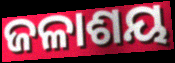
ଜଳାଶୟ